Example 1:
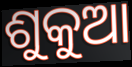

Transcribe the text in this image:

ଶୁକୁଆ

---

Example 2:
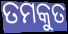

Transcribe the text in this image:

ତମକୁତ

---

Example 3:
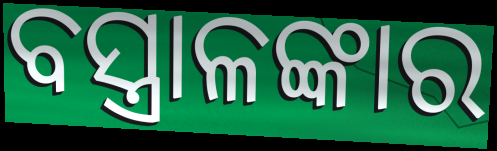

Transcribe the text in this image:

ବସ୍ତ୍ରାଳଙ୍କାର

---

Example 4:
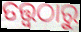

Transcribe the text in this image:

ତତ୍ତ୍ବଠାରୁ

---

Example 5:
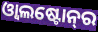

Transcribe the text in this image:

ଓ୍ୱାଲଷ୍ଟୋନ୍‌ର